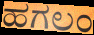
ಹಗಲಂ